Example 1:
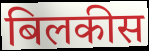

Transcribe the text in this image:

बिलकीस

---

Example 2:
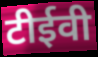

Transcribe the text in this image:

टीईवी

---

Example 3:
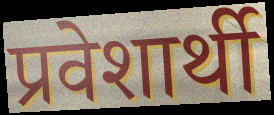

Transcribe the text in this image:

प्रवेशार्थी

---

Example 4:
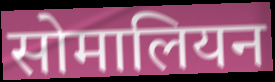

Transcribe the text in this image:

सोमालियन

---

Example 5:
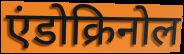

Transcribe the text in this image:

एंडोक्रिनोल